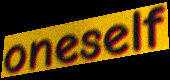
oneself